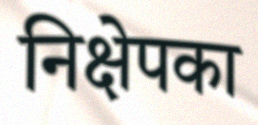
निक्षेपका